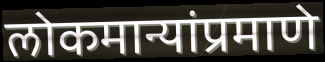
लोकमान्यांप्रमाणे